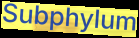
Subphylum